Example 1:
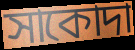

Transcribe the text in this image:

সাকোদা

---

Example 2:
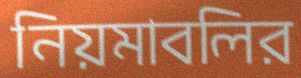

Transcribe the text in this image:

নিয়মাবলির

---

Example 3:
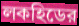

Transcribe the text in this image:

লকহিডের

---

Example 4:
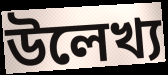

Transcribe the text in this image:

উলেখ্য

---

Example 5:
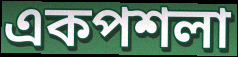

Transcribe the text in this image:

একপশলা